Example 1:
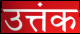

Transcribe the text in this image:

उत्तंक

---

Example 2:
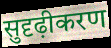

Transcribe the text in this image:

सुदृढ़ीकरण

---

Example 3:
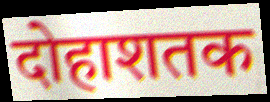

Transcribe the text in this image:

दोहाशतक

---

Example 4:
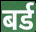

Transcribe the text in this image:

बर्ड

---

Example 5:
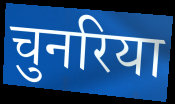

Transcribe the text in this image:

चुनरिया